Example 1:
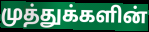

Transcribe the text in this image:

முத்துக்களின்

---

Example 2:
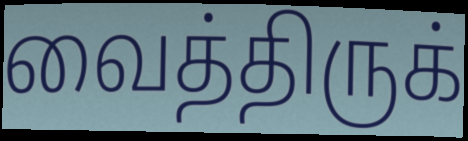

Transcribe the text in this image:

வைத்திருக்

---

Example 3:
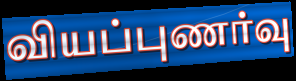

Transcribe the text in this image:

வியப்புணர்வு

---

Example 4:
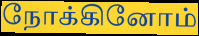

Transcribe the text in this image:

நோக்கினோம்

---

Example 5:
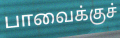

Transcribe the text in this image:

பாவைக்குச்